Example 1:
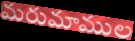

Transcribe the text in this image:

మరుమాముల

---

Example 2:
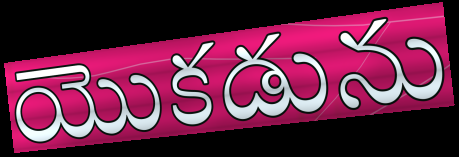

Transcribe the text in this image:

యొకడును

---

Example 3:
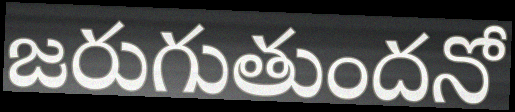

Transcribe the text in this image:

జరుగుతుందనో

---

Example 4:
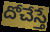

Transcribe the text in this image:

దోచేస్తే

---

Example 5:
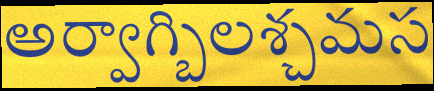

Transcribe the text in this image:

అర్వాగ్బిలశ్చమస